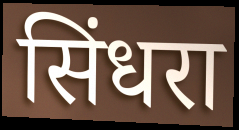
सिंधरा